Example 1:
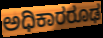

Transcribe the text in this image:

ಅಧಿಕಾರರೂಢ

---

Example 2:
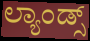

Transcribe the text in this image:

ಲ್ಯಾಂಡ್ಸ್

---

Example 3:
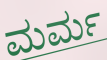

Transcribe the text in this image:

ಮರ್ಮ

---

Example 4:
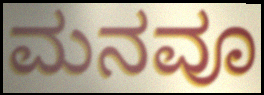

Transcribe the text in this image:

ಮನವೂ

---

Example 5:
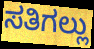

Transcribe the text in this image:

ಸತಿಗಲ್ಲು